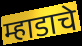
म्हाडाचे